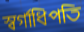
স্বর্গাধিপতি